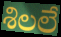
శిలలే